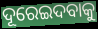
ଦୂରେଇଦବାକୁ